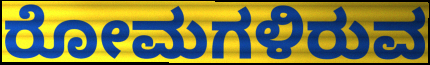
ರೋಮಗಳಿರುವ